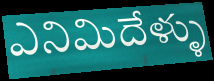
ఎనిమిదేళ్ళు